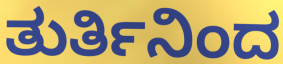
ತುರ್ತಿನಿಂದ